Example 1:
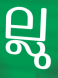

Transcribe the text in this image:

ല്ലു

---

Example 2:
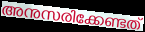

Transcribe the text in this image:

അനുസരിക്കേണ്ടത്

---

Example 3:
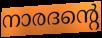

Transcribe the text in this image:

നാരദന്റെ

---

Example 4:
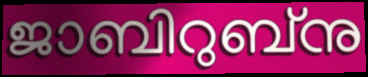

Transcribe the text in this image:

ജാബിറുബ്നു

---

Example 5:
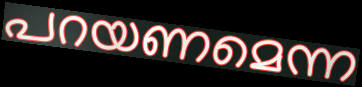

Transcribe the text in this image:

പറയണമെന്ന